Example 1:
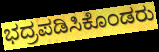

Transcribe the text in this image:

ಭದ್ರಪಡಿಸಿಕೊಂಡರು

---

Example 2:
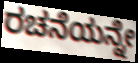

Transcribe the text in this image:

ರಚನೆಯನ್ನೇ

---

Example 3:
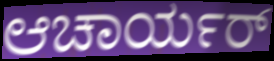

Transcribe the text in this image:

ಆಚಾರ್ಯರ್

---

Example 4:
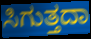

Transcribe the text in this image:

ಸಿಗುತ್ತದಾ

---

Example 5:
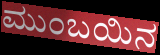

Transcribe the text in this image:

ಮುಂಬಯಿನ